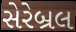
સેરેબ્રલ